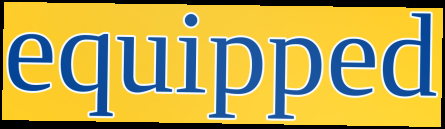
equipped